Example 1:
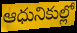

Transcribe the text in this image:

ఆధునికుల్లో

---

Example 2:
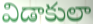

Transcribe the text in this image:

విడాకులా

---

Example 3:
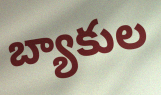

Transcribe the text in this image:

బ్యాకుల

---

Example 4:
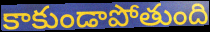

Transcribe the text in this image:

కాకుండాపోతుంది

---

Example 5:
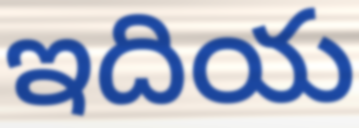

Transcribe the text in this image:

ఇదియ